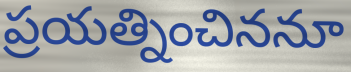
ప్రయత్నించిననూ